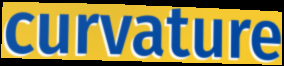
curvature